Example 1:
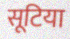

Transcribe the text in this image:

सूटिया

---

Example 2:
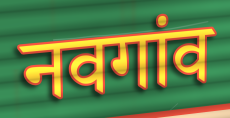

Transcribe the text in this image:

नवगांव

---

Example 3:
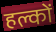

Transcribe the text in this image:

हल्कों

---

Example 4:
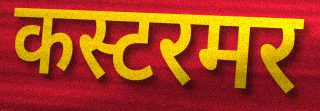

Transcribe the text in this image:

कस्टरमर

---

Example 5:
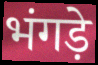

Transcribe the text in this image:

भंगड़े